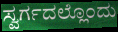
ಸ್ವರ್ಗದಲ್ಲೊಂದು